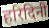
हरिदिनी